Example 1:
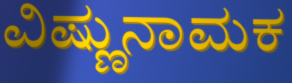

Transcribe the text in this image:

ವಿಷ್ಣುನಾಮಕ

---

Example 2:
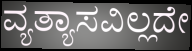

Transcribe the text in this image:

ವ್ಯತ್ಯಾಸವಿಲ್ಲದೇ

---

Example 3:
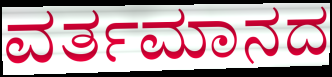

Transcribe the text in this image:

ವರ್ತಮಾನದ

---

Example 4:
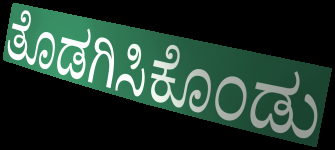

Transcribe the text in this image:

ತೊಡಗಿಸಿಕೊಂಡು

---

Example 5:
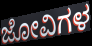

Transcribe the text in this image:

ಜೋವಿಗಳ